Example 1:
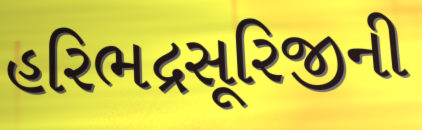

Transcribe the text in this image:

હરિભદ્રસૂરિજીની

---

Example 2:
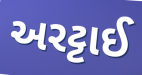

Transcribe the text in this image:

અરટ્ટાઈ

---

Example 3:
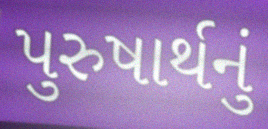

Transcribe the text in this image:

પુરુષાર્થનું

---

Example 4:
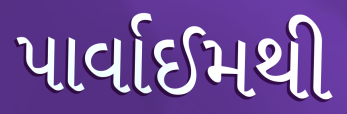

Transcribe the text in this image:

પાર્વાઈમથી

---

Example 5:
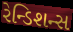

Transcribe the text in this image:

રેન્ડિશન્સ